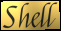
Shell